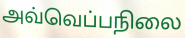
அவ்வெப்பநிலை